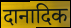
दानादिक